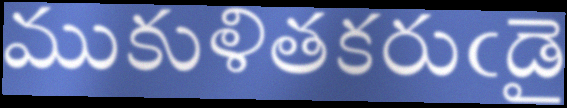
ముకుళితకరుఁడై